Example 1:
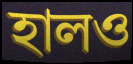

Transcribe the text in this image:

হালও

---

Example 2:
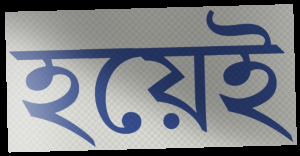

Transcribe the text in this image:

হয়েই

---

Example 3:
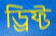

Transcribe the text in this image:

ড্রিফ্ট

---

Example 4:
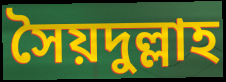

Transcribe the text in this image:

সৈয়দুল্লাহ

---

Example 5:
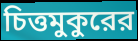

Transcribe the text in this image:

চিত্তমুকুরের